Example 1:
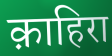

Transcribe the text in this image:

क़ाहिरा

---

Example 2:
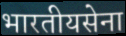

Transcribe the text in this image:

भारतीयसेना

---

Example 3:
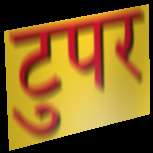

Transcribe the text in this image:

टुपर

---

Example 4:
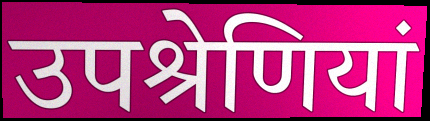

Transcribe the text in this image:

उपश्रेणियां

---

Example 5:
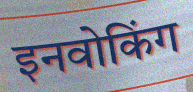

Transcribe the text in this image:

इनवोकिंग